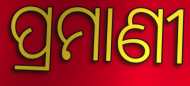
ପ୍ରମାଣୀ